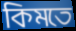
কিমতে